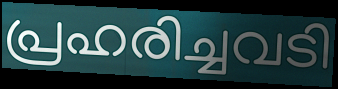
പ്രഹരിച്ചവടി